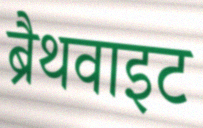
ब्रैथवाइट